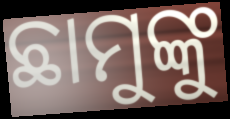
ଛାମୁଙ୍କୁ